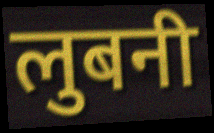
लुबनी